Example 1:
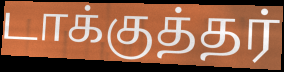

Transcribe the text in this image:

டாக்குத்தர்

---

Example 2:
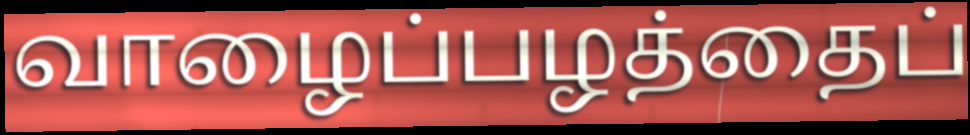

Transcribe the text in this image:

வாழைப்பழத்தைப்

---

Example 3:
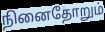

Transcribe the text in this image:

நினைதோறும்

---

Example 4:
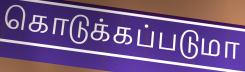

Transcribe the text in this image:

கொடுக்கப்படுமா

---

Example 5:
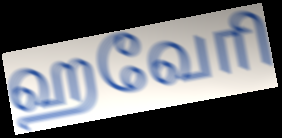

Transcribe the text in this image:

ஹவேரி